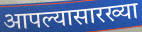
आपल्यासारख्या